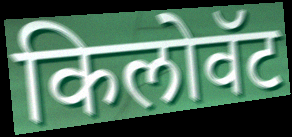
किलोवॅट